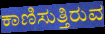
ಕಾಣಿಸುತ್ತಿರುವ